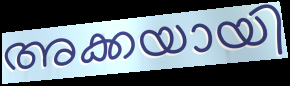
അക്കയായി